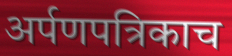
अर्पणपत्रिकाच